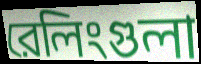
রেলিংগুলা